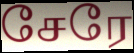
சேரே